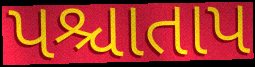
પશ્ચાતાપ